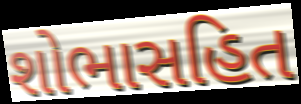
શોભાસહિત